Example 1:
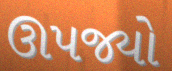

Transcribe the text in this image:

ઊપજ્યો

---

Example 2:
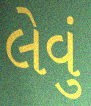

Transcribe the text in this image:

લેવું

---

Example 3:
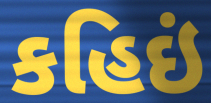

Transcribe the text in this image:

કહિઇં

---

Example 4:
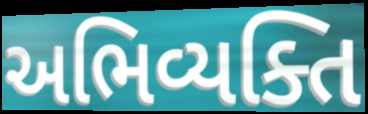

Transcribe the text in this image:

અભિવ્યક્તિ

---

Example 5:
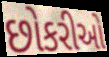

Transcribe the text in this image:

છોકરીઓ